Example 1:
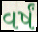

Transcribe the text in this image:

વર્ષં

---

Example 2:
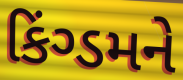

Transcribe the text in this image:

કિંગ્ડમને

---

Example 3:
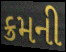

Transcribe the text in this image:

ક્રમની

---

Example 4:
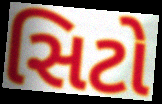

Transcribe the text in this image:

સિટો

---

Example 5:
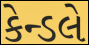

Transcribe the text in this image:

કેન્ડલે